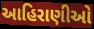
આહિરાણીઓ